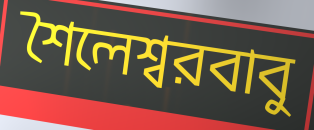
শৈলেশ্বরবাবু